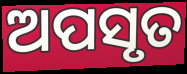
ଅପସୃତ